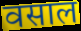
वसाल